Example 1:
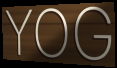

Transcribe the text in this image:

YOG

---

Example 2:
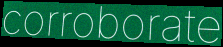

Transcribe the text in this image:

corroborate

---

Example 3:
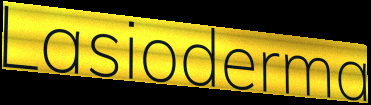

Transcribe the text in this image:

Lasioderma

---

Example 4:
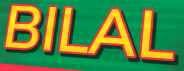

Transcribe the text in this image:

BILAL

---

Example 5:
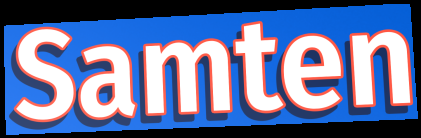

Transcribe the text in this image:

Samten